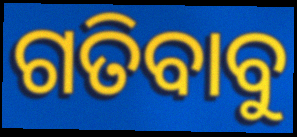
ଗତିବାବୁ